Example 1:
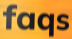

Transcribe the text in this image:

faqs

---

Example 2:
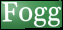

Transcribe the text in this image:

Fogg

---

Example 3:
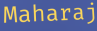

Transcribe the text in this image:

Maharaj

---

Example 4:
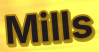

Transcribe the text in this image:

Mills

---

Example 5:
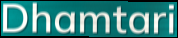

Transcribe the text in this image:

Dhamtari